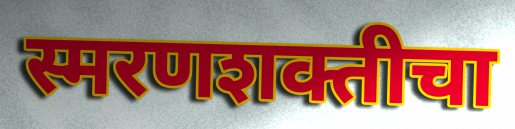
स्मरणशक्तीचा